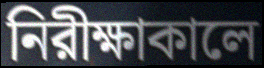
নিরীক্ষাকালে